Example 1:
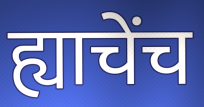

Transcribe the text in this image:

ह्याचेंच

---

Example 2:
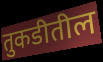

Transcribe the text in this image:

तुकडीतील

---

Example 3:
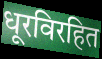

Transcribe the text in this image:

धूरविरहित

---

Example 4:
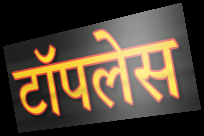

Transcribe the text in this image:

टॉपलेस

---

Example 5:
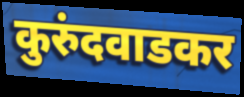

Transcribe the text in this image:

कुरुंदवाडकर